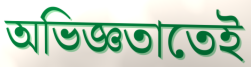
অভিজ্ঞতাতেই